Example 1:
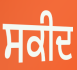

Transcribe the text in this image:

ਸਕੀਦ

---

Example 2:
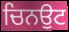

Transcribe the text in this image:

ਚਿਨਉਟ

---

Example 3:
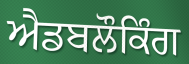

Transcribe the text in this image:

ਐਡਬਲੌਕਿੰਗ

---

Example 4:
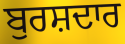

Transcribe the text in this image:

ਬੁਰਸ਼ਦਾਰ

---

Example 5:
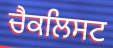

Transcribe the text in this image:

ਚੈਕਲਿਸਟ